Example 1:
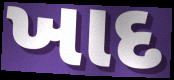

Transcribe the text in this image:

ખાદ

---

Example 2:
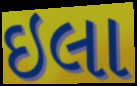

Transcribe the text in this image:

ઇલા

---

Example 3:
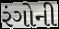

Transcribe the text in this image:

રંગોની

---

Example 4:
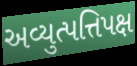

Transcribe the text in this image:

અવ્યુત્પત્તિપક્ષ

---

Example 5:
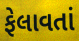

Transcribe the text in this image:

ફેલાવતાં